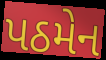
પઠમેન